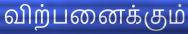
விற்பனைக்கும்